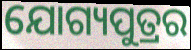
ଯୋଗ୍ୟପୁତ୍ରର